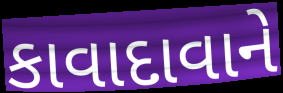
કાવાદાવાને